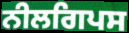
ਨੀਲਗਿਪਸ